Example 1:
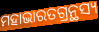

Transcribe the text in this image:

ମହାଭାରତଗ୍ରନ୍ଥସ୍ୟ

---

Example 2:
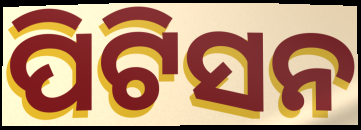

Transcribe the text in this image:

ପିଟିସନ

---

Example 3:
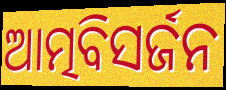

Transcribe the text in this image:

ଆତ୍ମବିସର୍ଜନ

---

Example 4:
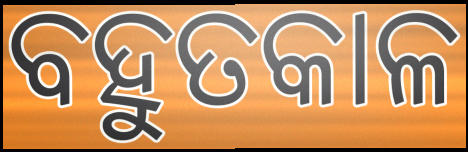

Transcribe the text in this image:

ବହୁତକାଳ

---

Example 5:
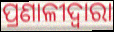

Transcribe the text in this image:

ପ୍ରଣାଳୀଦ୍ୱାରା